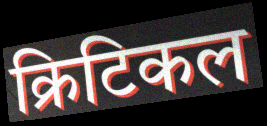
क्रिटिकल